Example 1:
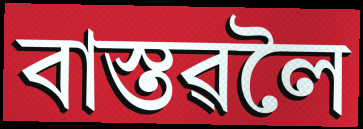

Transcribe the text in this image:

বাস্তৱলৈ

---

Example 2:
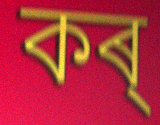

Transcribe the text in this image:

কৰ্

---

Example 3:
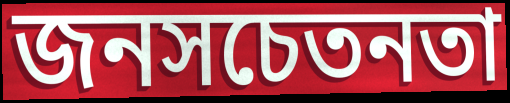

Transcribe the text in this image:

জনসচেতনতা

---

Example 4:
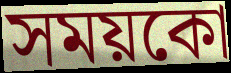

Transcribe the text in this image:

সময়কো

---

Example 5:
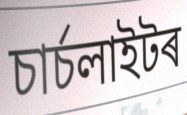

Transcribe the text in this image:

চাৰ্চলাইটৰ